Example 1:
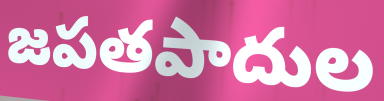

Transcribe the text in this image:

జపతపాదుల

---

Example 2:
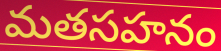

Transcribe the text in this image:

మతసహనం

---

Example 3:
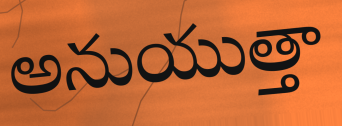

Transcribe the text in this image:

అనుయుత్తా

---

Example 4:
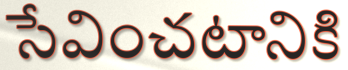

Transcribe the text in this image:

సేవించటానికి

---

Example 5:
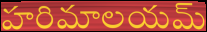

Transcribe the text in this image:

హరిమాలయమ్